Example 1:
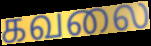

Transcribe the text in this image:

கவலை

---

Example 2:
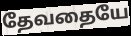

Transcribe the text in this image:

தேவதையே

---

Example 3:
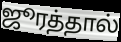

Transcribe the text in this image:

ஜூரத்தால்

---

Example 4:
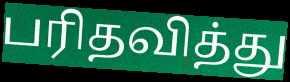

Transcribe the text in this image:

பரிதவித்து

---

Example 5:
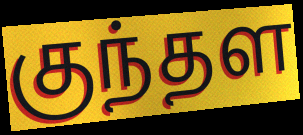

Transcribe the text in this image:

குந்தள